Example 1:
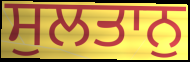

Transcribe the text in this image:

ਸੁਲਤਾਨੁ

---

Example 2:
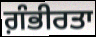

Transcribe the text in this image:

ਗ਼ੰਭੀਰਤਾ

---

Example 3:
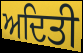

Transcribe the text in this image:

ਅਦਿਤੀ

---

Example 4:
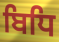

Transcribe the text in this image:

ਬਿਧਿ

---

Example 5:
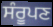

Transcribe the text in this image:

ਸੰਰੂਪਣ